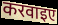
करवाइए